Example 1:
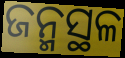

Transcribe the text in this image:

ଜନ୍ମସ୍ଥଳ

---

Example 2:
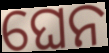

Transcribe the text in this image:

ଘେନ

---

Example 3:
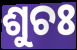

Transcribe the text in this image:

ଶୁଚଃ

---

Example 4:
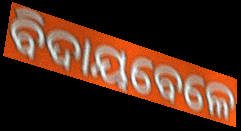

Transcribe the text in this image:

ବିଦାୟବେଳେ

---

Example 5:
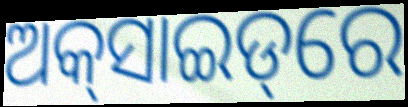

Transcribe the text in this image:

ଅକ୍‌ସାଇଡ୍‌ରେ